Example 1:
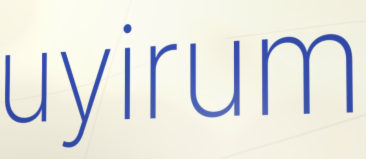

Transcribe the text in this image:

uyirum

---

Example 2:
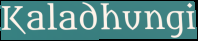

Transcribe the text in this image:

Kaladhungi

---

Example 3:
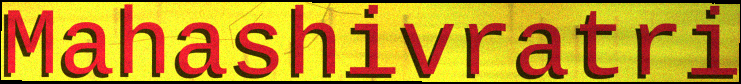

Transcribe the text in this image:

Mahashivratri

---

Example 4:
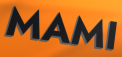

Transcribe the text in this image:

MAMI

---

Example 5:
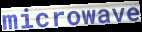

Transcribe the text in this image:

microwave